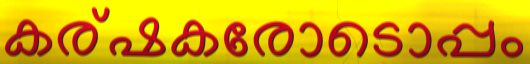
കര്ഷകരോടൊപ്പം